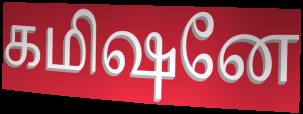
கமிஷனே